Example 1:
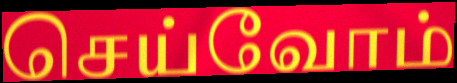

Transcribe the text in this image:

செய்வோம்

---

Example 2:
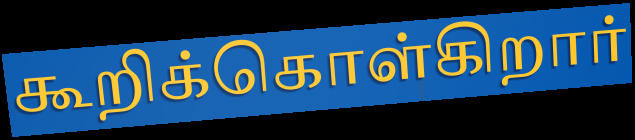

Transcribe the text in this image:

கூறிக்கொள்கிறார்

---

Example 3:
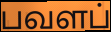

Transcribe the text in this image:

பவளப்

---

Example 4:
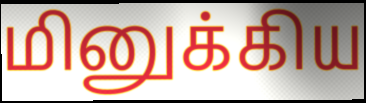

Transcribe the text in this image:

மினுக்கிய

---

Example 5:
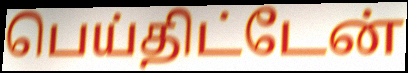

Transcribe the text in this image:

பெய்திட்டேன்